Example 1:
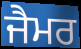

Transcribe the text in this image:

ਜੈਮਰ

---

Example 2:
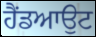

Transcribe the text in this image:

ਹੈਂਡਆਉਟ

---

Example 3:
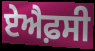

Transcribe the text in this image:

ਏਐਫ਼ਸੀ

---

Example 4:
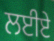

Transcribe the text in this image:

ਲਈਏ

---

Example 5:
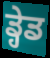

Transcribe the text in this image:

ਡ੍ਹੇਡ